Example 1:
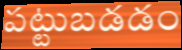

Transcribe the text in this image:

పట్టుబడడం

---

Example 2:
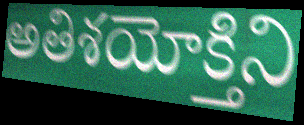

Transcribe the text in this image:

అతిశయోక్తిని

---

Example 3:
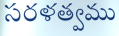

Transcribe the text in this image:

సరళత్వము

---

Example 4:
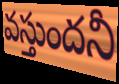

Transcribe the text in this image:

వస్తుందనీ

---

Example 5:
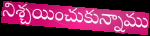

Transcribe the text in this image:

నిశ్చయించుకున్నాము